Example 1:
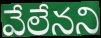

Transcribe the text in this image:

వేలేనని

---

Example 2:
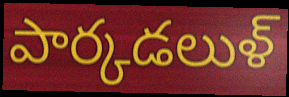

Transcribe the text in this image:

పార్కడలుళ్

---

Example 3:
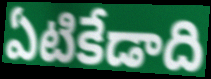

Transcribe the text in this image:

ఏటికేడాది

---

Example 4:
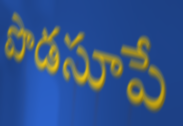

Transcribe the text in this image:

పొడసూపే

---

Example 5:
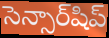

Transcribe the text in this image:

సెన్సార్‌షిప్